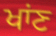
ਖਾਂਣ